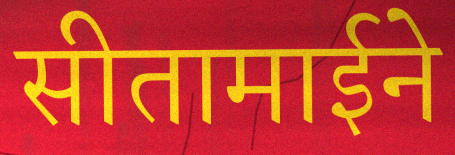
सीतामाईने